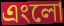
এংলো